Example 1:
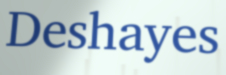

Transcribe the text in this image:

Deshayes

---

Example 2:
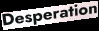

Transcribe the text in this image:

Desperation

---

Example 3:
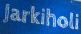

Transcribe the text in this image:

Jarkiholi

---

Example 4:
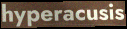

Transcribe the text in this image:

hyperacusis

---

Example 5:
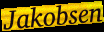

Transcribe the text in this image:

Jakobsen